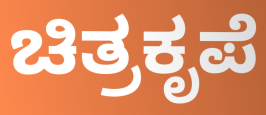
ಚಿತ್ರಕೃಪೆ